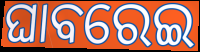
ଘାବରେଇ